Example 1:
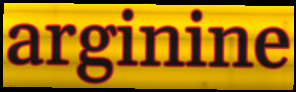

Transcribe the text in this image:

arginine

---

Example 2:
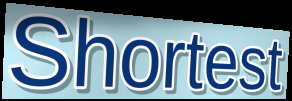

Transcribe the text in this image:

Shortest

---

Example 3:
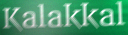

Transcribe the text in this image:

Kalakkal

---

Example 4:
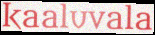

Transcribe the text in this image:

kaaluvala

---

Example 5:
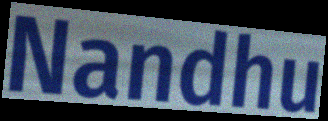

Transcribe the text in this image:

Nandhu